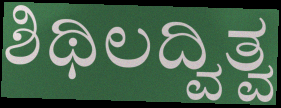
ಶಿಥಿಲದ್ವಿತ್ವ